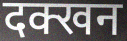
दक्खन